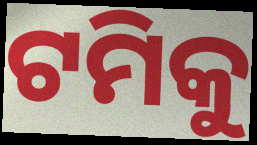
ଟମିକୁ